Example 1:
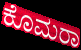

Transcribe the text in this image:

ಕೊಮರಾ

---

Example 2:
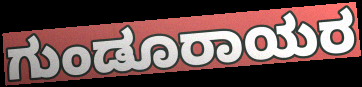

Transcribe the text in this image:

ಗುಂಡೂರಾಯರ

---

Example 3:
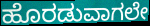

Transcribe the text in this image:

ಹೊರಡುವಾಗಲೇ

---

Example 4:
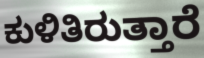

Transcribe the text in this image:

ಕುಳಿತಿರುತ್ತಾರೆ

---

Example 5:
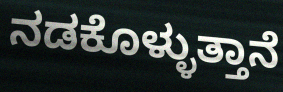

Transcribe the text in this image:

ನಡಕೊಳ್ಳುತ್ತಾನೆ